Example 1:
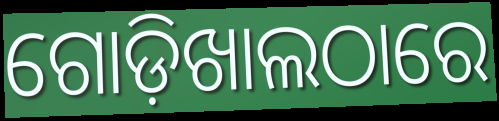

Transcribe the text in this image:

ଗୋଡ଼ିଖାଲଠାରେ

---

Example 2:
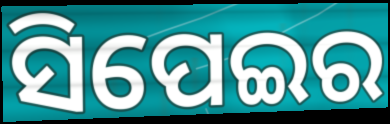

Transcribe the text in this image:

ସିପେଇର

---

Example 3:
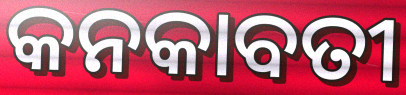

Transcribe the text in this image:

କନକାବତୀ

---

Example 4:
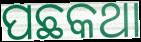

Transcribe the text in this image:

ପଛକଥା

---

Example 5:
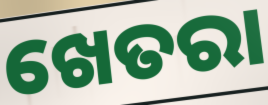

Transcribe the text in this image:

ଖେତରା